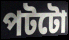
পটটো